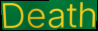
Death